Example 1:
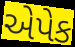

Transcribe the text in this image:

એપેક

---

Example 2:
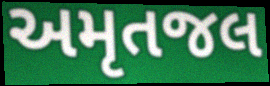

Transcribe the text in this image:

અમૃતજલ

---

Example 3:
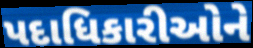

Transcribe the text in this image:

પદાધિકારીઓને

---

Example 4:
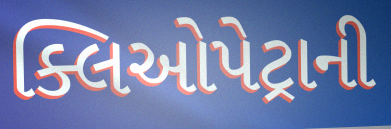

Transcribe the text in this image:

ક્લિઓપેટ્રાની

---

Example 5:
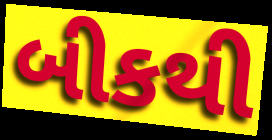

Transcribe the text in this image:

બીકથી